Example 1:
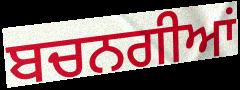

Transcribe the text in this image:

ਬਚਨਗੀਆਂ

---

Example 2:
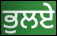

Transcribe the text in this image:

ਭੁਲਏ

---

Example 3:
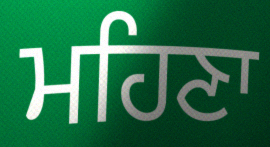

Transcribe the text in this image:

ਮਹਿਣਾ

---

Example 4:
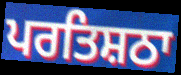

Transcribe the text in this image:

ਪਰਤਿਸ਼ਠਾ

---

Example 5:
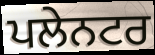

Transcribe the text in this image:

ਪਲੇਨਟਰ